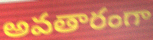
అవతారంగా